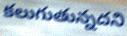
కలుగుతున్నదని